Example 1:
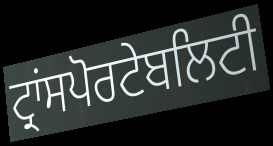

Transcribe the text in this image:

ਟ੍ਰਾਂਸਪੋਰਟੇਬਲਿਟੀ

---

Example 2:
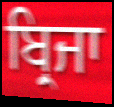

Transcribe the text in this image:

ਬ੍ਰਿਜਾ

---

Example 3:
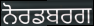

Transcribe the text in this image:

ਨੋਰਡਬਰਗ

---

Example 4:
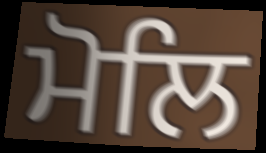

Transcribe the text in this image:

ਮੋਲਿ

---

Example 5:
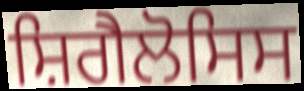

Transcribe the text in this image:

ਸ਼ਿਗੈਲੋਸਿਸ